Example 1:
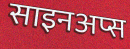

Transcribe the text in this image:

साइनअप्स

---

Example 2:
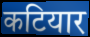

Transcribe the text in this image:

कटियार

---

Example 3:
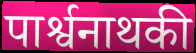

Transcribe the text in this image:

पार्श्वनाथकी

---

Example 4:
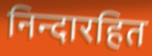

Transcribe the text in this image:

निन्दारहित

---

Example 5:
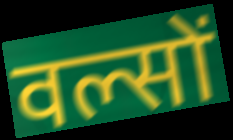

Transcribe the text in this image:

वल्सों